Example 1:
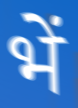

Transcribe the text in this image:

भें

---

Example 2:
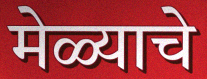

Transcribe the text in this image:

मेळ्याचे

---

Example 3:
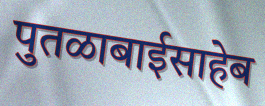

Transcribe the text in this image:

पुतळाबाईसाहेब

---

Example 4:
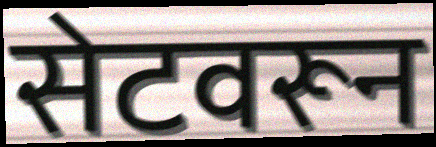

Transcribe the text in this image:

सेटवरून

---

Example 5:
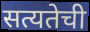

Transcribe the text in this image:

सत्यतेची